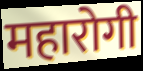
महारोगी